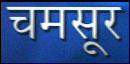
चमसूर